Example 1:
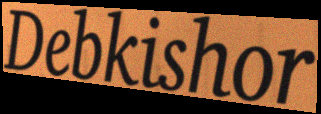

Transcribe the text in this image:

Debkishor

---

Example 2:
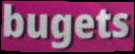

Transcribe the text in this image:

bugets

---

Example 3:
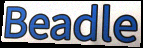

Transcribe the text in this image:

Beadle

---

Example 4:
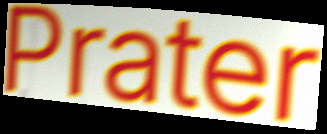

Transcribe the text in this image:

Prater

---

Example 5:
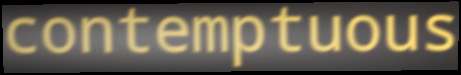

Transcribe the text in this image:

contemptuous